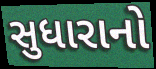
સુધારાનો